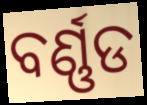
ବର୍ଣ୍ଣଡ